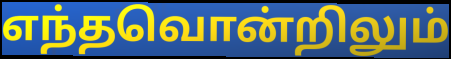
எந்தவொன்றிலும்